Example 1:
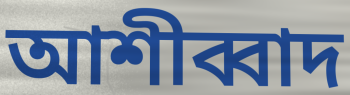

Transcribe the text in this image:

আশীব্বাদ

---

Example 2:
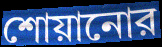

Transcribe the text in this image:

শোয়ানোর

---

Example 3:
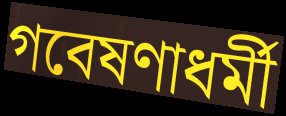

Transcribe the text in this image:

গবেষণাধর্মী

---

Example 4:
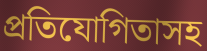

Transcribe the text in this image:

প্রতিযোগিতাসহ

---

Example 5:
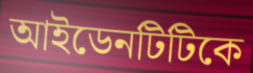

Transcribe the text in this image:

আইডেনটিটিকে